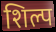
शिल्‍प